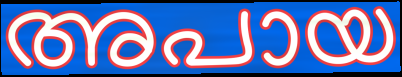
അപായ